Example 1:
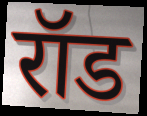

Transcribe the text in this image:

रॉड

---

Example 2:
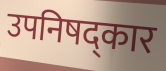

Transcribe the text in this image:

उपनिषद्कार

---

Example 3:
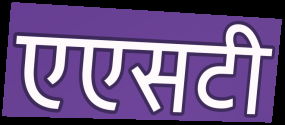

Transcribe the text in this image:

एएसटी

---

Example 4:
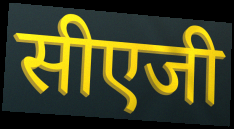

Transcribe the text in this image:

सीएजी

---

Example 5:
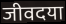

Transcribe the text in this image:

जीवदया